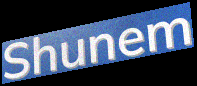
Shunem